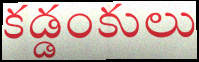
కడ్డంకులు